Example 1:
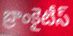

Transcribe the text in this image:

బ్రాంకైటీస్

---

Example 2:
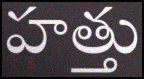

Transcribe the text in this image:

హత్తు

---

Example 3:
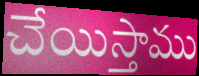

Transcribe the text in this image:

చేయిస్తాము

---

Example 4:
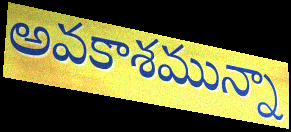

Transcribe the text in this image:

అవకాశమున్నా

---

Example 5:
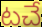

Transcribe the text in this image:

టచే